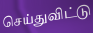
செய்துவிட்டு